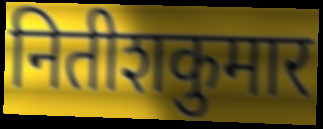
नितीशकुमार